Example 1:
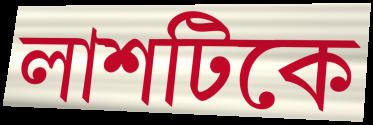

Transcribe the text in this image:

লাশটিকে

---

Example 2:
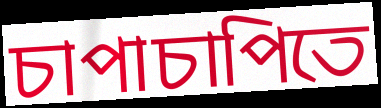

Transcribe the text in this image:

চাপাচাপিতে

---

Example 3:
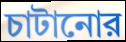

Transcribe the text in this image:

চাটানোর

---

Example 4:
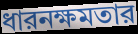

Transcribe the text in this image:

ধারনক্ষমতার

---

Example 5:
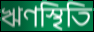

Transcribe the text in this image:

ঋণস্থিতি